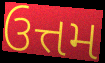
ઉત્તમ